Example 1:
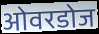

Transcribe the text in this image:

ओवरडोज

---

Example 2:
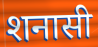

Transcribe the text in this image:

शनासी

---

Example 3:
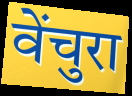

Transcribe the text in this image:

वेंचुरा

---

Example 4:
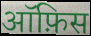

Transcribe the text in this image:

ऑफ़िस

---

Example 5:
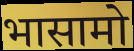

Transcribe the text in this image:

भासामो